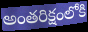
అంతరిక్షంలోకి